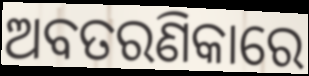
ଅବତରଣିକାରେ